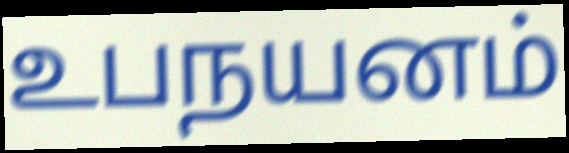
உபநயனம்